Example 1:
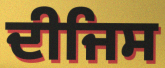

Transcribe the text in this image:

ਦੀਜਿਸ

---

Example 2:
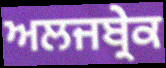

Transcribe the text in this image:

ਅਲਜਬ੍ਰੇਕ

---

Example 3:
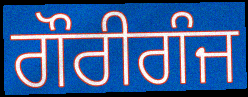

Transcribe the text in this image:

ਗੌਰੀਗੰਜ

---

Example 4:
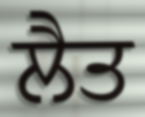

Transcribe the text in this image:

ਲੈਤ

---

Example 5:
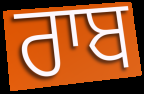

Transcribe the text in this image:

ਰਾਬ